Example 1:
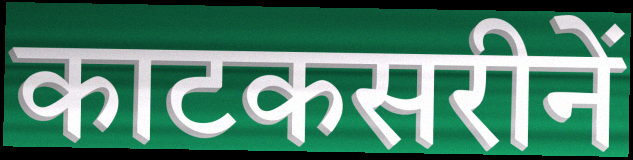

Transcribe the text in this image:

काटकसरीनें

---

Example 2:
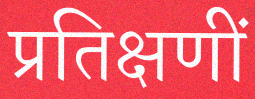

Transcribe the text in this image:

प्रतिक्षणीं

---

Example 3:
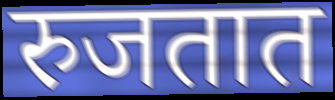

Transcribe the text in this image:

रुजतात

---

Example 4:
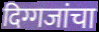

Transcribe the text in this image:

दिग्गजांचा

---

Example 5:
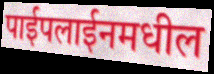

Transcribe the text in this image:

पाईपलाईनमधील